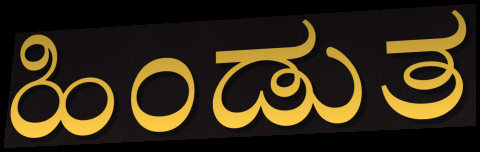
ಹಿಂಡುತ